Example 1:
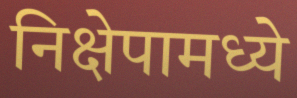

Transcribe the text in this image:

निक्षेपामध्ये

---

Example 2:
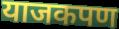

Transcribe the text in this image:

याजकपण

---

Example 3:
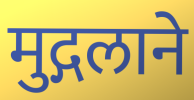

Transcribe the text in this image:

मुद्गलाने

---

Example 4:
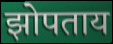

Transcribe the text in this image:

झोपताय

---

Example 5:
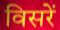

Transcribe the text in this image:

विसरें